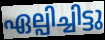
ഏല്പിച്ചിട്ടു